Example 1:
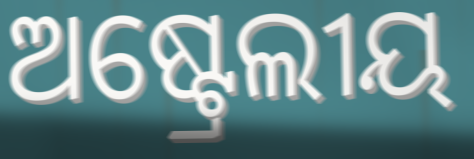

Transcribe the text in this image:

ଅଷ୍ଟ୍ରେଲୀୟ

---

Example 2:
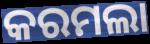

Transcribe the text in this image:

କରମଲା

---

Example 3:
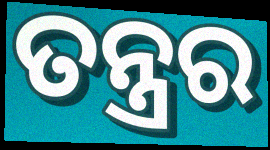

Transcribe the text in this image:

ତନ୍ତ୍ରର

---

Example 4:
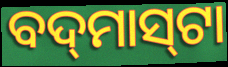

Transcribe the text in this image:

ବଦ୍‌ମାସ୍‌ଟା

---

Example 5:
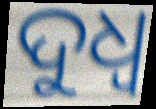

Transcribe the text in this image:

ଦୁଧ୍ଵ